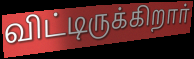
விட்டிருக்கிறார்